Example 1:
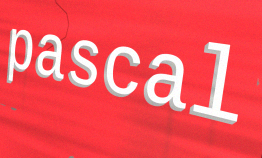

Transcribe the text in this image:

pascal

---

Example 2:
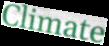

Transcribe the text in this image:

Climate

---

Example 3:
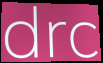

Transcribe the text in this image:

drc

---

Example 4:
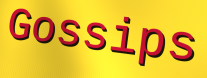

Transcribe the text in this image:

Gossips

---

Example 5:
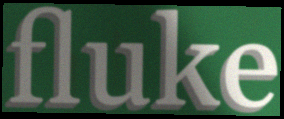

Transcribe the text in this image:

fluke